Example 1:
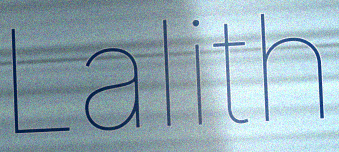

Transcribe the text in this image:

Lalith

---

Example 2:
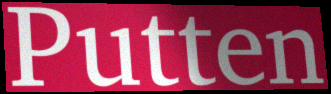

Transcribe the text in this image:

Putten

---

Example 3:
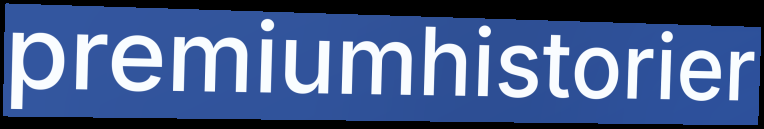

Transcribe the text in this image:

premiumhistorier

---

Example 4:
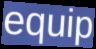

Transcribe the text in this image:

equip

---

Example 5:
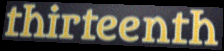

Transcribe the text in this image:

thirteenth